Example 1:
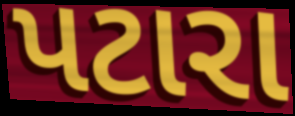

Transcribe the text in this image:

પટારા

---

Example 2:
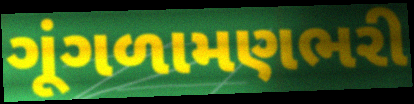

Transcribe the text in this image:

ગૂંગળામણભરી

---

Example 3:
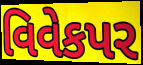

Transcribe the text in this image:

વિવેકપર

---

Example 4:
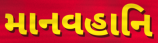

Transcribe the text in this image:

માનવહાનિ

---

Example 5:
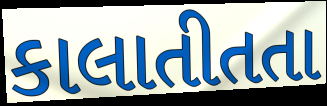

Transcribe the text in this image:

કાલાતીતતા